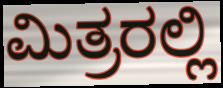
ಮಿತ್ರರಲ್ಲಿ